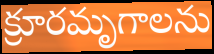
క్రూరమృగాలను